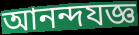
আনন্দযজ্ঞ